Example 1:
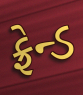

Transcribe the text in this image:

ફ્રેન્ડ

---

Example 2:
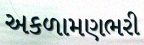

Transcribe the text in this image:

અકળામણભરી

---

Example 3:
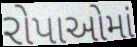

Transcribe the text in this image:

રોપાઓમાં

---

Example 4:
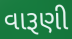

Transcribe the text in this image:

વારૂણી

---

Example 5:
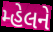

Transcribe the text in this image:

મ્હેલને